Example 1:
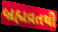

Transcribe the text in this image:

બ્રહ્મવ્રતથી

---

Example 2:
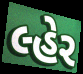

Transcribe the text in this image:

લ્હેર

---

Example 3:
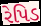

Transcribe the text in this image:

રેપિડ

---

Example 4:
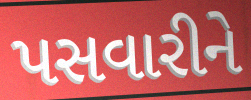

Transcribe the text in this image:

પસવારીને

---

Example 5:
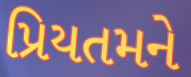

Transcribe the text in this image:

પ્રિયતમને